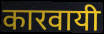
कारवायी